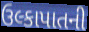
ઉલ્કાપાતની